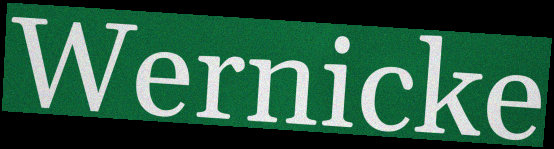
Wernicke